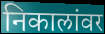
निकालांवर